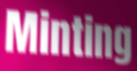
Minting